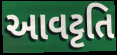
આવટ્ટતિ